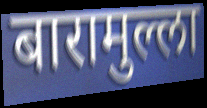
बारामुल्ला